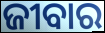
ଜୀବାର